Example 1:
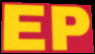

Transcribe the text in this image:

EP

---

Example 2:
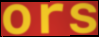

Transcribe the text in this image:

ors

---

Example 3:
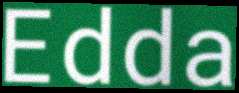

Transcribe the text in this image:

Edda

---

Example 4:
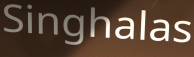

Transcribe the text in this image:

Singhalas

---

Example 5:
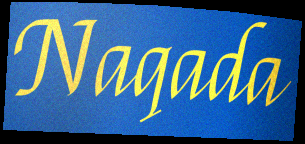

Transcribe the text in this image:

Naqada